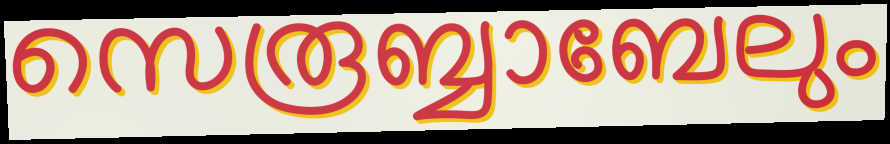
സെരൂബ്ബാബേലും